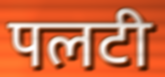
पलटी